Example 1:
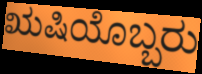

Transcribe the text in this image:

ಋಷಿಯೊಬ್ಬರು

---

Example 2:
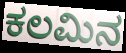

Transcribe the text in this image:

ಕಲಮಿನ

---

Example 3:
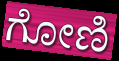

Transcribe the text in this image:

ಗೋಣಿ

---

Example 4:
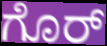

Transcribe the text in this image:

ಗೊರ್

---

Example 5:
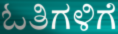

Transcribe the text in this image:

ಓತಿಗಳಿಗೆ